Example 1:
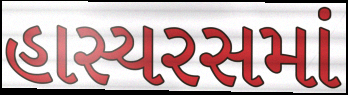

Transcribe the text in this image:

હાસ્યરસમાં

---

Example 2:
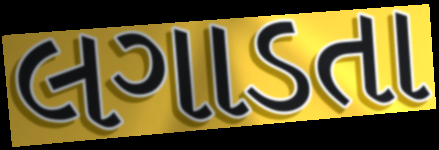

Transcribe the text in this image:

લગાડતા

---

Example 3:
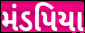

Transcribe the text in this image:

મંડપિયા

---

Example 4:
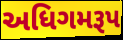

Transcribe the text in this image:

અધિગમરૂપ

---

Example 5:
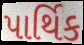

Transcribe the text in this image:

પાર્થિક